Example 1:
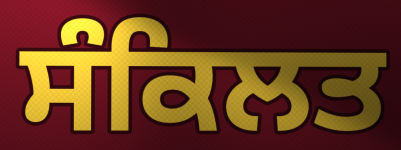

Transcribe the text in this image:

ਸੰਕਿਲਤ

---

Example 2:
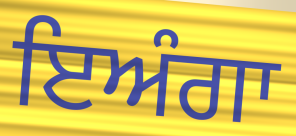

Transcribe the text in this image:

ਇਅੰਗਾ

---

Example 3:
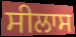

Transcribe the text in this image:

ਸੀਲਾਸ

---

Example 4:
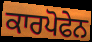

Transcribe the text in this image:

ਕਾਰਪੋਫੇਨ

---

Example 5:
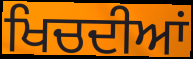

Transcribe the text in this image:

ਖਿਚਦੀਆਂ